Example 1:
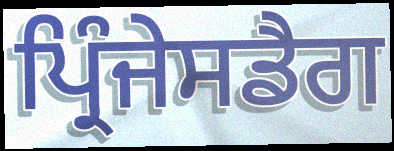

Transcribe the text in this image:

ਪ੍ਰਿੰਜੇਸਡੈਗ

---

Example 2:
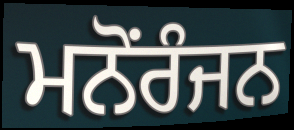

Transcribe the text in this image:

ਮਨੋਂਰੰਜਨ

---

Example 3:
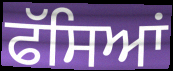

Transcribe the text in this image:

ਫੱਸਿਆਂ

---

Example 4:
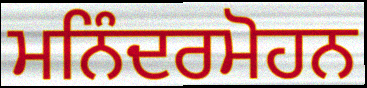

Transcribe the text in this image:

ਮਨਿੰਦਰਮੋਹਨ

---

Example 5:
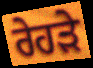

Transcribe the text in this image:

ਰੇਹੜੇ